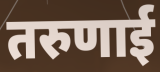
तरुणाई